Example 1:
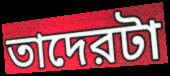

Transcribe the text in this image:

তাদেরটা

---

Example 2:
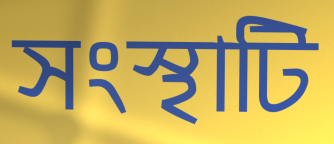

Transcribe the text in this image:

সংস্থাটি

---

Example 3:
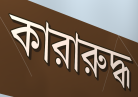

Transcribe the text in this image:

কারারুদ্ধ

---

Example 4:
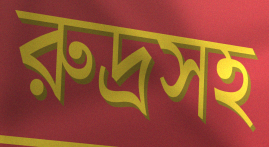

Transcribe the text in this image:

রুদ্রসহ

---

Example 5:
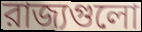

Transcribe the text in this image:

রাজ্যগুলো